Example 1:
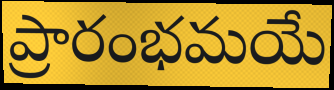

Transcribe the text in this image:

ప్రారంభమయే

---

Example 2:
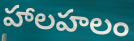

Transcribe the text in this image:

హాలహలం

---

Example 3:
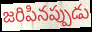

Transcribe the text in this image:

జరిపినప్పుడు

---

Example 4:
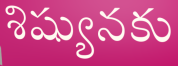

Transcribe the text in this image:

శిష్యునకు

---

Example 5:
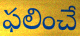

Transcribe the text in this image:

ఫలించే